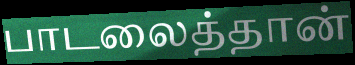
பாடலைத்தான்